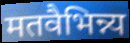
मतवैभिन्न्य